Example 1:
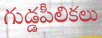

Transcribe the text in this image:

గుడ్డపీలికలు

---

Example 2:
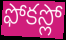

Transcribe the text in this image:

ఫోకస్లో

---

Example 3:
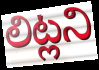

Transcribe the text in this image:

లిట్లని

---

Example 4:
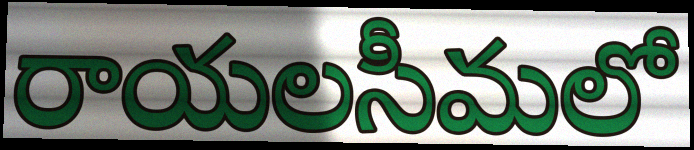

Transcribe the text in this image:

రాయలసీమలో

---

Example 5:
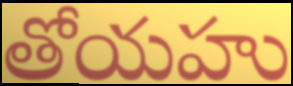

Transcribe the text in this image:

తోయహు